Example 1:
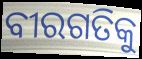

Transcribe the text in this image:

ବୀରଗତିକୁ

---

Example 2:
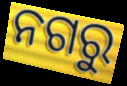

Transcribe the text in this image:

ନଗରୁ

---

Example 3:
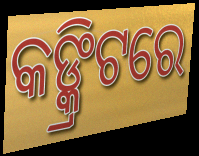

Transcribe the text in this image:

କଙ୍କ୍ରିଟରେ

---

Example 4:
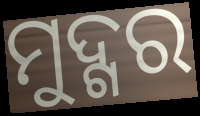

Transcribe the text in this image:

ମୁଦ୍ଗର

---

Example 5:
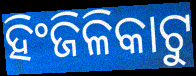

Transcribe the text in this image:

ହିଂଜିଳିକାଟୁ